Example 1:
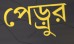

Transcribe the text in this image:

পেড়্রুর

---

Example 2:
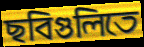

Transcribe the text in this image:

ছবিগুলিতে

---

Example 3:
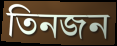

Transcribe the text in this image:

তিনজন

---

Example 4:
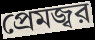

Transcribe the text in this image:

প্রেমজ্বর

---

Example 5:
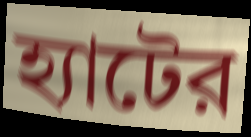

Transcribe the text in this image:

হ্যাটের